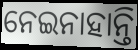
ନେଇନାହାନ୍ତି